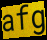
afg